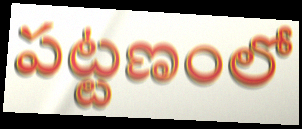
పట్టణంలో